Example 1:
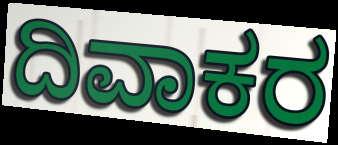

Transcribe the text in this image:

ದಿವಾಕರ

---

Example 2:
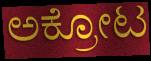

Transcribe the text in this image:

ಅಕ್ರೋಟ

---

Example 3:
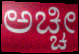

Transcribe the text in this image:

ಅಚ್ಚೀ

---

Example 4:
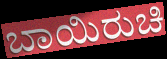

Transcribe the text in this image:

ಬಾಯಿರುಚಿ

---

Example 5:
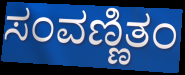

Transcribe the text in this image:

ಸಂವಣ್ಣಿತಂ